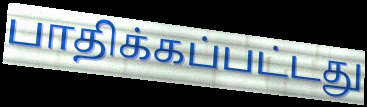
பாதிக்கப்பட்டது